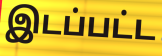
இடப்பட்ட